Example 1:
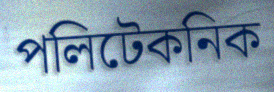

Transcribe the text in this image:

পলিটেকনিক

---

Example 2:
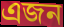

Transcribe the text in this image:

এজন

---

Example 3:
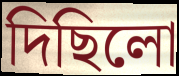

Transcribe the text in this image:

দিছিলো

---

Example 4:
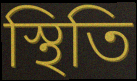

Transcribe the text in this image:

স্থিতি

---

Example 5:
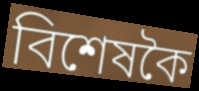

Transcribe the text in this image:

বিশেষকৈ